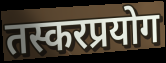
तस्करप्रयोग